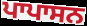
ਪਾਪਾਸਨ